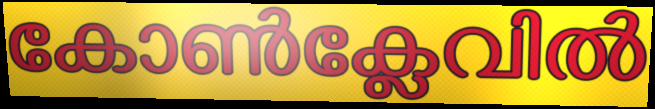
കോൺക്ലേവിൽ